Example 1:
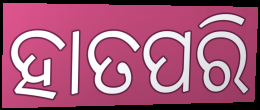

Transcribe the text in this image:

ହାତପରି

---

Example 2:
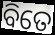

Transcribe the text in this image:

ବିତେ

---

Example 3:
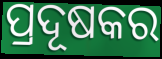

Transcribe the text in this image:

ପ୍ରଦୂଷକର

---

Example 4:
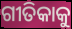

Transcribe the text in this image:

ଗୀତିକାକୁ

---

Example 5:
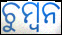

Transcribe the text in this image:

ଚୁମ୍ବନ